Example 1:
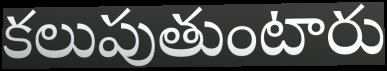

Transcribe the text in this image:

కలుపుతుంటారు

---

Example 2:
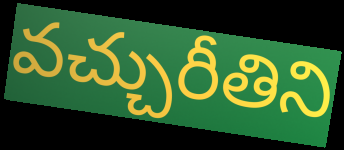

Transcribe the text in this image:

వచ్చురీతిని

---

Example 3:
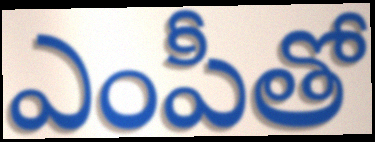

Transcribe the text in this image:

ఎంపీతో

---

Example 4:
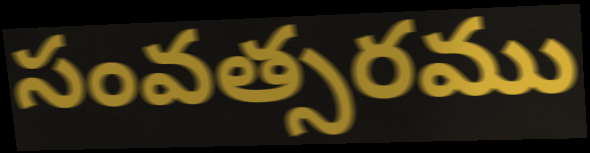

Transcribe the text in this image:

సంవత్సరము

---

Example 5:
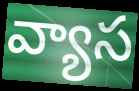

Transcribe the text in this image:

వ్యాస